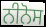
ਨੀਨੋਸ